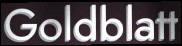
Goldblatt